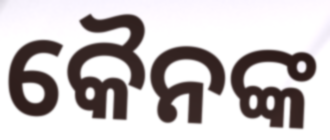
କୈନଙ୍କ